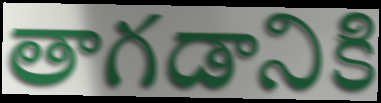
తాగడానికి